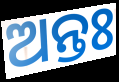
ଅନ୍ତଃ